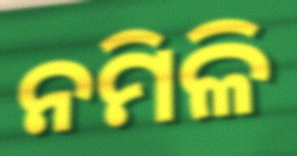
ନମିଳି